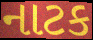
નાટક